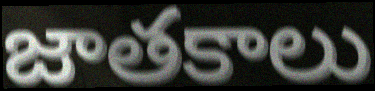
జాతకాలు